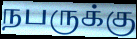
நபருக்கு